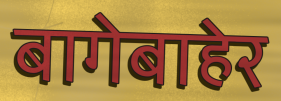
बागेबाहेर